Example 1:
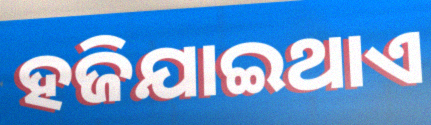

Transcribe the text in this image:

ହଜିଯାଇଥାଏ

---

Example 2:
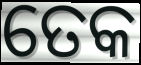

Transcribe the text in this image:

ତେକ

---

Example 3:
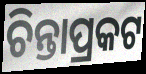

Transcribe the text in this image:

ଚିନ୍ତାପ୍ରକଟ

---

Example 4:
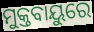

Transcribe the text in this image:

ମୁକ୍ତବାୟୁରେ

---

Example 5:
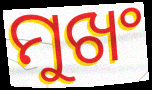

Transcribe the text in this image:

ମୁଖଂ